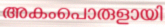
അകംപൊരുളായി